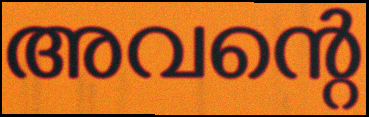
അവന്റെ